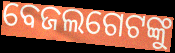
ବେଜଲଗେଟଙ୍କୁ